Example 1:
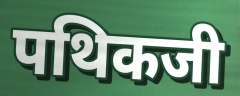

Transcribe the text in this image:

पथिकजी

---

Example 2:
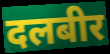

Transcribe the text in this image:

दलबीर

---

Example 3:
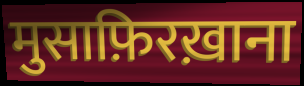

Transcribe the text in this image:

मुसाफ़िरख़ाना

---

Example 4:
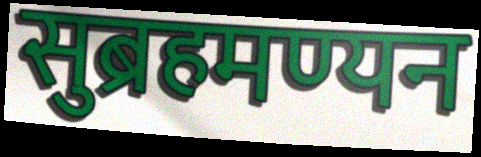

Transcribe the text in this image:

सुब्रहमण्यन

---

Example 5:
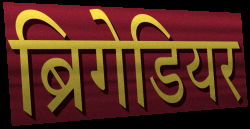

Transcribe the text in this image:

ब्रिगेडियर